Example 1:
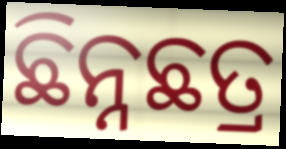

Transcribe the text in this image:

ଛିନ୍ନଛତ୍ର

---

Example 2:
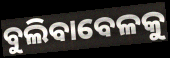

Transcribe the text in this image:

ବୁଲିବାବେଳକୁ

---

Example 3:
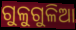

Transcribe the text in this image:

ଗୁଳୁଗୁଳିଆ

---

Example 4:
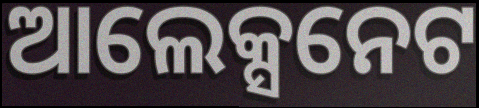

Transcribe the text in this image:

ଆଲେକ୍ସନେଟ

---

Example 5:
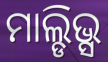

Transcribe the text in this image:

ମାଲ୍ଡିଭ୍ସ